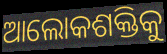
ଆଲୋକଶକ୍ତିକୁ